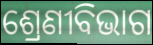
ଶ୍ରେଣୀବିଭାଗ